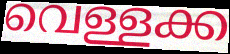
വെള്ളക്ക